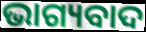
ଭାଗ୍ୟବାଦ